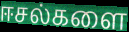
ஈசல்களை